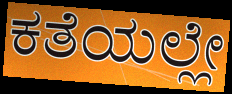
ಕತೆಯಲ್ಲೇ